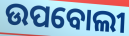
ଉପବୋଲୀ